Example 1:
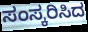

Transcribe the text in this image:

ಸಂಸ್ಕರಿಸಿದ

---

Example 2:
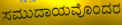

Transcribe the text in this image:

ಸಮುದಾಯವೊಂದರ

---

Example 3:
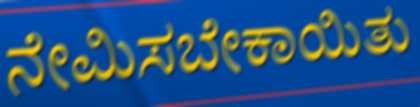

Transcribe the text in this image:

ನೇಮಿಸಬೇಕಾಯಿತು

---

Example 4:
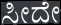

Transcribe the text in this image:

ಸೀದೇ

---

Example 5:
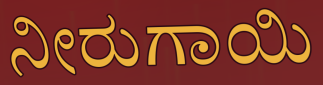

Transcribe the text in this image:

ನೀರುಗಾಯಿ